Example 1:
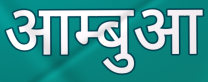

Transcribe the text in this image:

आम्बुआ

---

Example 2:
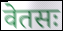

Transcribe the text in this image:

वेतसः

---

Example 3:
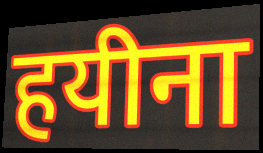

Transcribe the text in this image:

हयीना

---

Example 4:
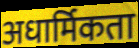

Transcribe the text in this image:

अधार्मिकता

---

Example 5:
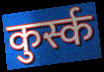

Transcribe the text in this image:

कुर्स्क